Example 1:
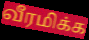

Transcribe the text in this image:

வீரமிக்க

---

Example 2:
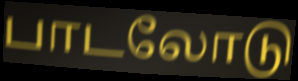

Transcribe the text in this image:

பாடலோடு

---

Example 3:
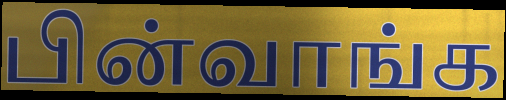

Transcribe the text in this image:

பின்வாங்க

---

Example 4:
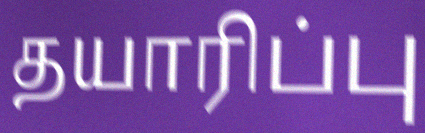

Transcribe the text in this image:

தயாரிப்பு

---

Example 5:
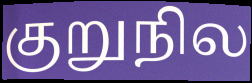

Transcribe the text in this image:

குறுநில